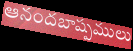
ఆనందబాష్పములు